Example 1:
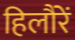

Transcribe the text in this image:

हिलौरें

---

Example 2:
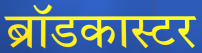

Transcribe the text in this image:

ब्रॉडकास्टर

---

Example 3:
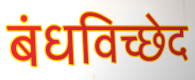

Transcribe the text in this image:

बंधविच्छेद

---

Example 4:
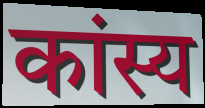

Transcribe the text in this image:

कांस्‍य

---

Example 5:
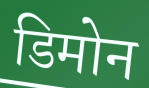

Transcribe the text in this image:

डिमोन